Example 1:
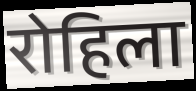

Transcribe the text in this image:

रोहिला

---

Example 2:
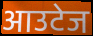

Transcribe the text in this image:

आउटेज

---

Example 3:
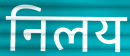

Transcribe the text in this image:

निलय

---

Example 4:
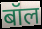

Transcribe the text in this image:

बॉल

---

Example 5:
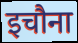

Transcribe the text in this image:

इचौना